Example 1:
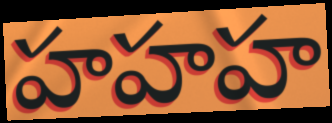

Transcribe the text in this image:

హహహ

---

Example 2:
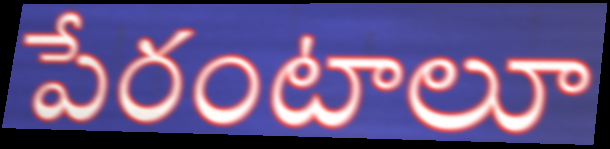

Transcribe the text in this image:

పేరంటాలూ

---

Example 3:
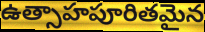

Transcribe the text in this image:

ఉత్సాహపూరితమైన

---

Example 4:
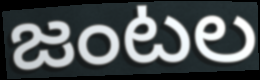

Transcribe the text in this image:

జంటల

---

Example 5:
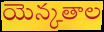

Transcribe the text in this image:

యెన్కతాల